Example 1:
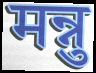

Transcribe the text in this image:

मन्नु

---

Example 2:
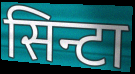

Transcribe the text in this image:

सिन्टा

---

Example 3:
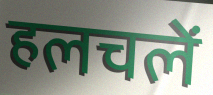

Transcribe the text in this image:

हलचलें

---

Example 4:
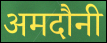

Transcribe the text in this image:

अमदौनी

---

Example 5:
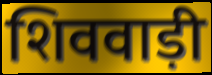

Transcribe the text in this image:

शिववाड़ी